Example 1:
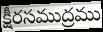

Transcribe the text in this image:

క్షీరసముద్రము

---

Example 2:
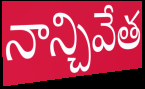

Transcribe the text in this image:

నాన్చివేత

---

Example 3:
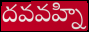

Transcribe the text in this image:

దవవహ్ని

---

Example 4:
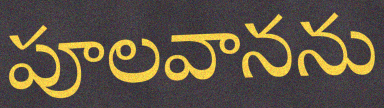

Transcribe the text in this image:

పూలవానను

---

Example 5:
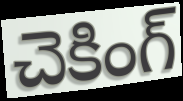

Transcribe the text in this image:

చెకింగ్